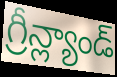
గ్రీన్ల్యాండ్